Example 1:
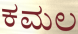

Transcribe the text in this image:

ಕಮಲ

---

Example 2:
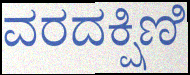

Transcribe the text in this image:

ವರದಕ್ಷಿಣಿ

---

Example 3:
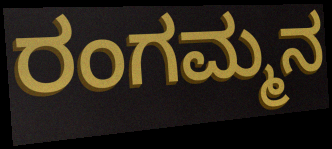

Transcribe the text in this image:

ರಂಗಮ್ಮನ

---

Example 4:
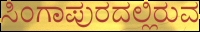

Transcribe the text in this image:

ಸಿಂಗಾಪುರದಲ್ಲಿರುವ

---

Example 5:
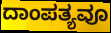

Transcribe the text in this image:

ದಾಂಪತ್ಯವೂ